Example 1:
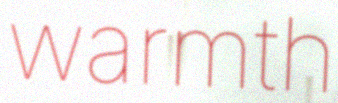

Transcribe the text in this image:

warmth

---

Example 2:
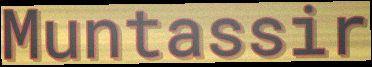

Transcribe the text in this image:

Muntassir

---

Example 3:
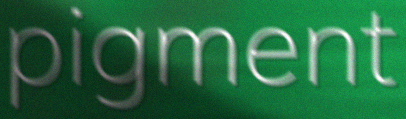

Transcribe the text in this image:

pigment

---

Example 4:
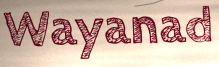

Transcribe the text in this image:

Wayanad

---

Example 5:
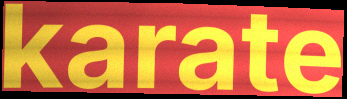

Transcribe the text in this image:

karate